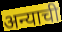
अन्याची